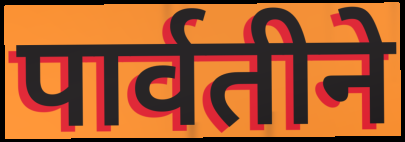
पार्वतीने